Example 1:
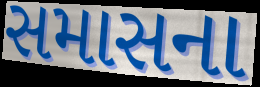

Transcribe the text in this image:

સમાસના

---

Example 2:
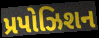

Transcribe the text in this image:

પ્રપોઝિશન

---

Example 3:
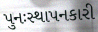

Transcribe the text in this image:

પુનઃસ્થાપનકારી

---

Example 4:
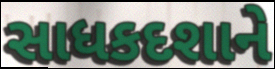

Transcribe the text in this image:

સાધકદશાને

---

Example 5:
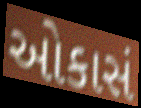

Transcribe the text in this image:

ઓકાસં